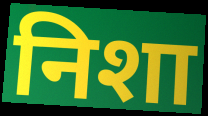
निशा